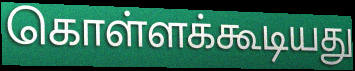
கொள்ளக்கூடியது